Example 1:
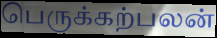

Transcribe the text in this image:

பெருக்கற்பலன்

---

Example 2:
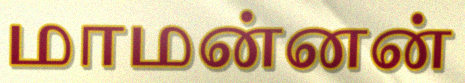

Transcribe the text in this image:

மாமன்னன்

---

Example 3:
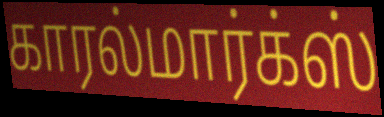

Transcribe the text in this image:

காரல்மார்க்ஸ்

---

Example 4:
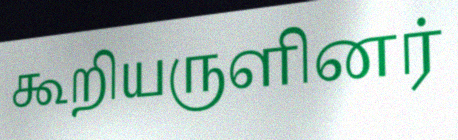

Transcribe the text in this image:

கூறியருளினர்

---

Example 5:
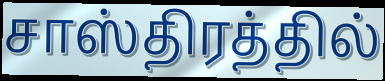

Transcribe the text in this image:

சாஸ்திரத்தில்